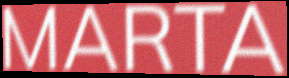
MARTA